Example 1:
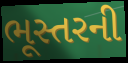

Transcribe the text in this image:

ભૂસ્તરની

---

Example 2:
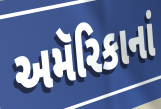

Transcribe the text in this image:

અમૅરિકાનાં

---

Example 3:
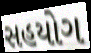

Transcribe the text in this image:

સહયોગ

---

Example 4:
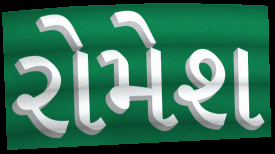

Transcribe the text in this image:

રોમેશ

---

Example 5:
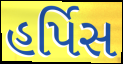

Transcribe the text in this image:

હર્પિસ